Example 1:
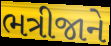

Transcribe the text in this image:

ભત્રીજાને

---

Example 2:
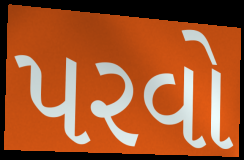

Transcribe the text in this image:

પરવો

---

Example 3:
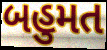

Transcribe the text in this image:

બહુમત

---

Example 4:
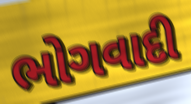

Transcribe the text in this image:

ભોગવાદી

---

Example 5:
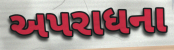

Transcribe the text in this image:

અપરાધના